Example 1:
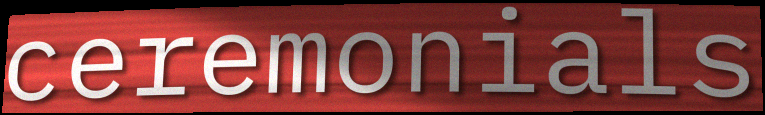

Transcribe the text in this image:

ceremonials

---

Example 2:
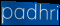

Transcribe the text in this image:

padhri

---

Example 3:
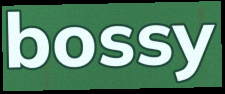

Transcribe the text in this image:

bossy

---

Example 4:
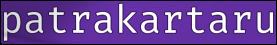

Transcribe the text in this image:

patrakartaru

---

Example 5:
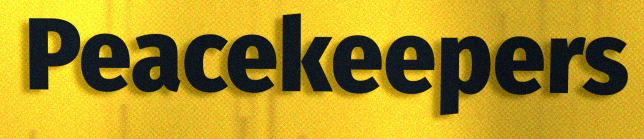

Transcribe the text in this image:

Peacekeepers